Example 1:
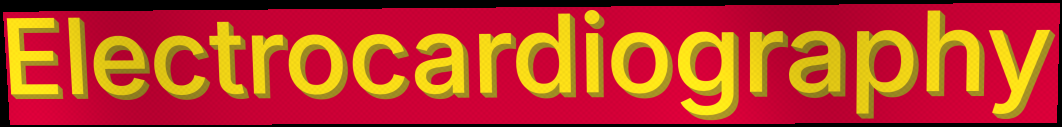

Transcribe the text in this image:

Electrocardiography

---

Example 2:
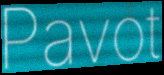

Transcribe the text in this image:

Pavot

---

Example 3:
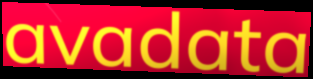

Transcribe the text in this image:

avadata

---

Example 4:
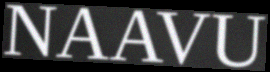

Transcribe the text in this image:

NAAVU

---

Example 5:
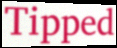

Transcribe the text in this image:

Tipped